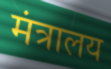
मंत्रालय